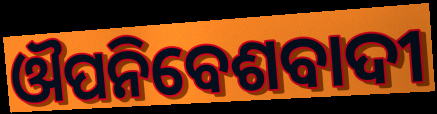
ଔପନିବେଶବାଦୀ